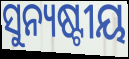
ସୁନ୍ୟଷ୍ଟୀୟ